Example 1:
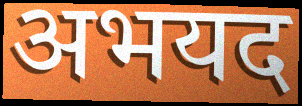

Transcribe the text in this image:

अभयद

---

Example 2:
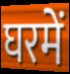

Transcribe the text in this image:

घरमें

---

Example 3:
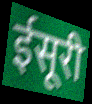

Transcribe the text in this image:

ईसूरी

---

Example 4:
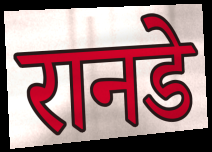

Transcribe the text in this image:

रानडे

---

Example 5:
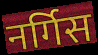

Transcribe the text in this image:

नर्गिस